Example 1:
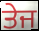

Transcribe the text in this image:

ਤੇਜ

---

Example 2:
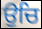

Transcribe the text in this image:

ਉਚਿ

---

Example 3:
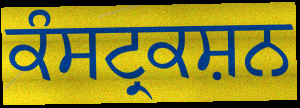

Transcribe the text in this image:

ਕੰਸਟ੍ਰਕਸ਼ਨ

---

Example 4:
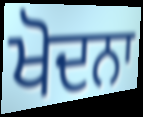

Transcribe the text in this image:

ਖੋਦਨਾ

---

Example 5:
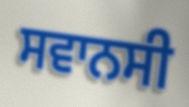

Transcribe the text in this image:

ਸਵਾਨਸੀ